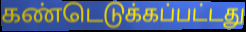
கண்டெடுக்கப்பட்டது